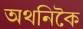
অথনিকৈ